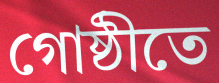
গোষ্ঠীতে